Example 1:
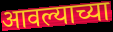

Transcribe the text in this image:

आवल्याच्या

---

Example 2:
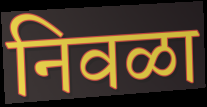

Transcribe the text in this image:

निवळा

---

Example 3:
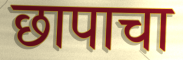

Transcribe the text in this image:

छापाचा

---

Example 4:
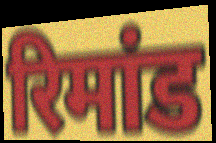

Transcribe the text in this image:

रिमांड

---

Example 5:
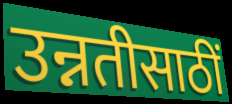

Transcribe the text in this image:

उन्नतीसाठीं